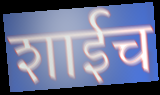
शाईच